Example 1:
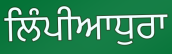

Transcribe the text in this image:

ਲਿੰਪੀਆਧੁਰਾ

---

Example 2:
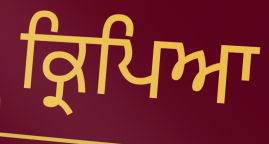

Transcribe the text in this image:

ਕ੍ਰਿਪਿਆ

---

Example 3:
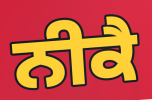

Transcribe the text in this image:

ਨੀਕੈ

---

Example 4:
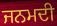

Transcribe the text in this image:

ਜਨਮਦੀ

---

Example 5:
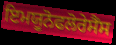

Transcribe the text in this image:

ਇਮਯੂਨੋਫਲੋਰੇਸੈਂਸ